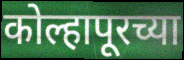
कोल्हापूरच्या